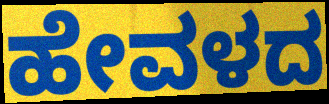
ಹೇವಳದ